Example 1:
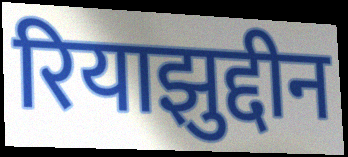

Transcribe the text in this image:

रियाझुद्दीन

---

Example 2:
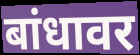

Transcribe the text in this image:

बांधावर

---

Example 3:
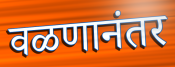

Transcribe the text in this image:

वळणानंतर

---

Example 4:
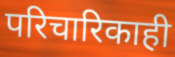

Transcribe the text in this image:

परिचारिकाही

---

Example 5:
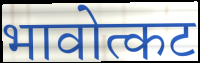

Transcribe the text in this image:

भावोत्कट